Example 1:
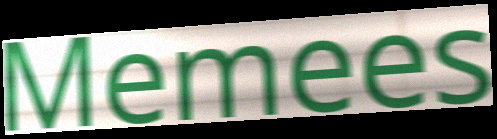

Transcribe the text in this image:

Memees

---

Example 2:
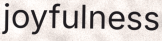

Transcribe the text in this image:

joyfulness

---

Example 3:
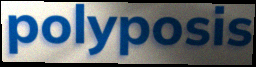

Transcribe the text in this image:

polyposis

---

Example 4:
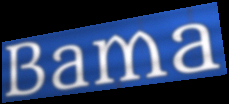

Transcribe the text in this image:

Bama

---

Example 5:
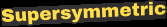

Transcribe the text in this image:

Supersymmetric